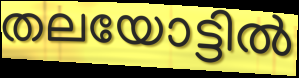
തലയോട്ടിൽ